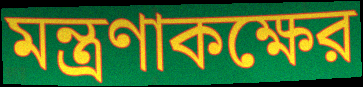
মন্ত্রণাকক্ষের